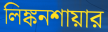
লিঙ্কনশায়ার